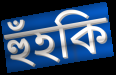
হুঁহকি